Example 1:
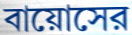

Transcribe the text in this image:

বায়োসের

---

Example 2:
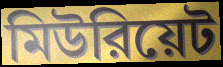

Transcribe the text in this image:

মিউরিয়েট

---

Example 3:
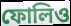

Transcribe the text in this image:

ফোলিও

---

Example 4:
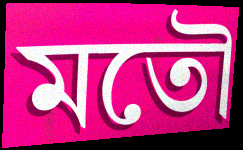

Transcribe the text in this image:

মতৌ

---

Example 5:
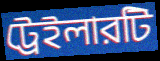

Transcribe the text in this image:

ট্রেইলারটি